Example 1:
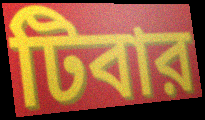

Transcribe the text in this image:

টিবার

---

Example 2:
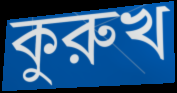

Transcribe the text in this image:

কুরুখ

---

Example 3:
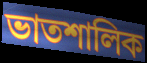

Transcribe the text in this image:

ভাতশালিক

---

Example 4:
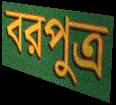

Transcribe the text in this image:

বরপুত্র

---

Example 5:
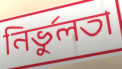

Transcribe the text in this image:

নির্ভুলতা